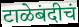
टाळेबंदीचं